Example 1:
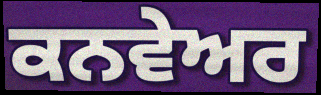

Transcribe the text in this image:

ਕਨਵੇਅਰ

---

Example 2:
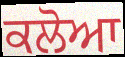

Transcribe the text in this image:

ਕਲੋਆ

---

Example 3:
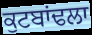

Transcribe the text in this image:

ਕੁਟਬਾਂਢਲਾ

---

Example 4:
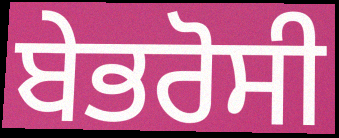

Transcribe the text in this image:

ਬੇਭਰੋਸੀ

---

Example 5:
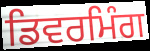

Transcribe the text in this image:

ਡਿਵਰਮਿੰਗ